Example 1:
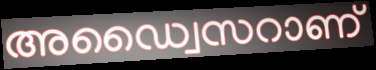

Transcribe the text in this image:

അഡ്വൈസറാണ്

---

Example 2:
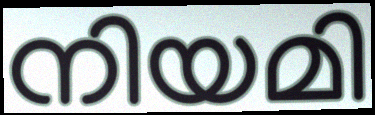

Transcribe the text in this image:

നിയമി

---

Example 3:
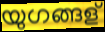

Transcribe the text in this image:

യുഗങ്ങള്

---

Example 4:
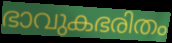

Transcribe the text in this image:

ഭാവുകഭരിതം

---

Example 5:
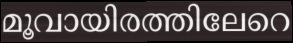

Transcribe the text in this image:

മൂവായിരത്തിലേറെ